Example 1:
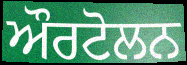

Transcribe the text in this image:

ਔਰਟੋਲਨ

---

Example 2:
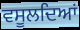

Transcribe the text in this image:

ਵਸੂਲਦਿਆਂ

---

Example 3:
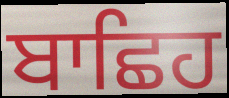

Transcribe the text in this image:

ਬਾਛਿਹ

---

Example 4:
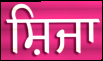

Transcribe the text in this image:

ਸ਼ਿਜਾ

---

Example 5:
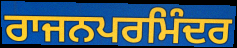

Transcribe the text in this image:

ਰਾਜਨਪਰਮਿੰਦਰ